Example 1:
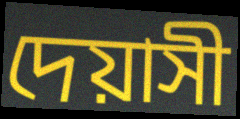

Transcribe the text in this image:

দেয়াসী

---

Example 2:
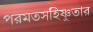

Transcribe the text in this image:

পরমতসহিষ্ণুতার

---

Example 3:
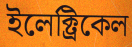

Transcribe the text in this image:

ইলেক্ট্রিকেল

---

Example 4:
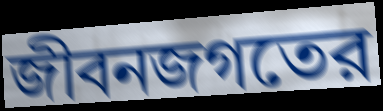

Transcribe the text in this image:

জীবনজগতের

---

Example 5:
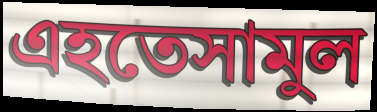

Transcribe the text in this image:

এহতেসামুল